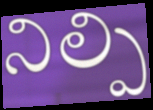
నిల్పి